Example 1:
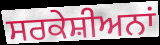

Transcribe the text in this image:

ਸਰਕੇਸ਼ੀਅਨਾਂ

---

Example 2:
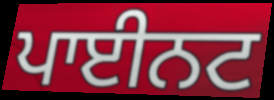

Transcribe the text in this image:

ਪਾਈਨਟ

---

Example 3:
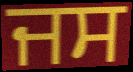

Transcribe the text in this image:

ਜਸ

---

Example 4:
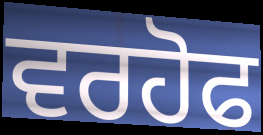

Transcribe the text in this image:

ਵਰਹੋਫ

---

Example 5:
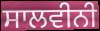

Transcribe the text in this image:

ਸਾਲਵੀਨੀ